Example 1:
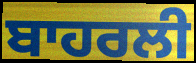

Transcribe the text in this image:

ਬਾਹਰਲੀ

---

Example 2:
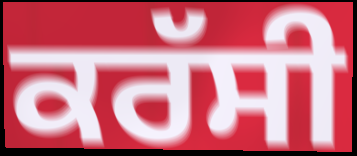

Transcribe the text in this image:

ਕਰੱਸੀ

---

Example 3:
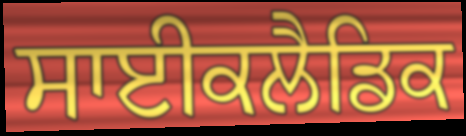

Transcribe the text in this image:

ਸਾਈਕਲੈਡਿਕ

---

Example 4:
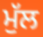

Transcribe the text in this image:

ਮੁੱਲ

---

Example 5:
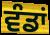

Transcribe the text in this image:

ਵੰਡਾਂ